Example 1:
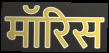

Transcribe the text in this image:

मॉरिस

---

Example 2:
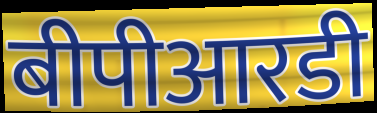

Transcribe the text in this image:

बीपीआरडी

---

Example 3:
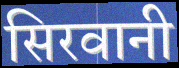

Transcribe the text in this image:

सिरवानी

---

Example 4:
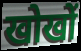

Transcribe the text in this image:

खोखों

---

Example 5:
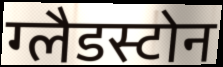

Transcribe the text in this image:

ग्लैडस्टोन